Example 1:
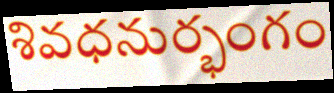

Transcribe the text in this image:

శివధనుర్భంగం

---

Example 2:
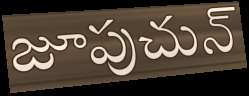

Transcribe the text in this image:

జూపుచున్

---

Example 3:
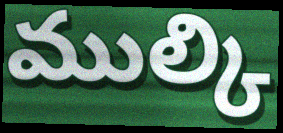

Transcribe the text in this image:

ముల్కి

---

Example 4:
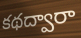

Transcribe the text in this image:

కథద్వారా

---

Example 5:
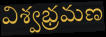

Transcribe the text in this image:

విశ్వభ్రమణ